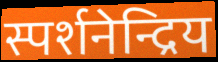
स्पर्शनेन्द्रिय